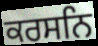
ਕਰਸਨਿ